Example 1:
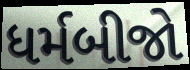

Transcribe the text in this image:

ધર્મબીજો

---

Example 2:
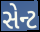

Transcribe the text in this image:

સેન્ટ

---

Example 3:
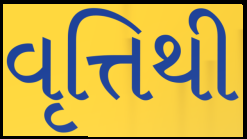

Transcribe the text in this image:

વૃત્તિથી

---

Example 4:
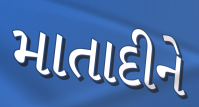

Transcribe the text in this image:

માતાદીને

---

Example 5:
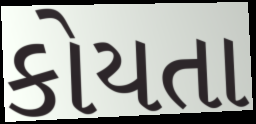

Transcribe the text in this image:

કોયતા